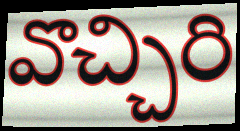
వొచ్చిరి